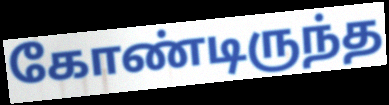
கோண்டிருந்த